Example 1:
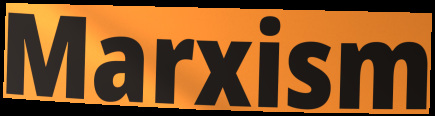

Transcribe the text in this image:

Marxism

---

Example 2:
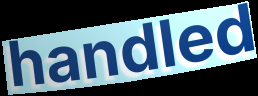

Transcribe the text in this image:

handled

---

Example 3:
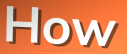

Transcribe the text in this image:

How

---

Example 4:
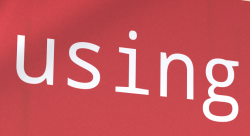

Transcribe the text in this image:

using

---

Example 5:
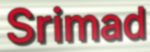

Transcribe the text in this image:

Srimad